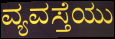
ವ್ಯವಸ್ತೆಯು